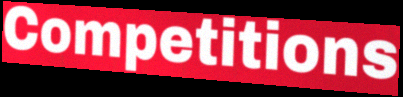
Competitions